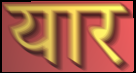
यार